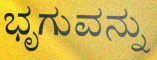
ಭೃಗುವನ್ನು